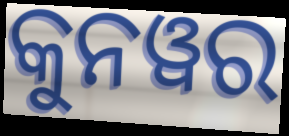
କୁନୱର